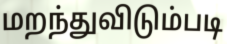
மறந்துவிடும்படி